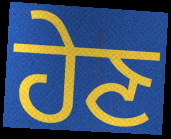
ਹੇਣ